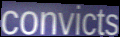
convicts